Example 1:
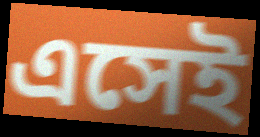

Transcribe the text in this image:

এসেই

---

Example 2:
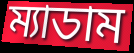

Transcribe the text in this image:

ম্যাডাম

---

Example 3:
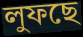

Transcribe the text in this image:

লুফছে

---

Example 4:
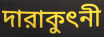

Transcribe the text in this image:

দারাকুৎনী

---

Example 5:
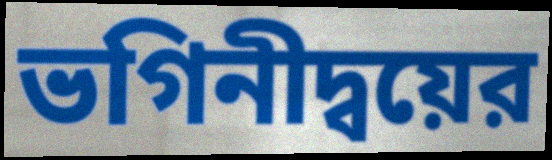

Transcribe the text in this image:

ভগিনীদ্বয়ের